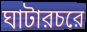
ঘাটারচরে